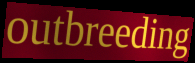
outbreeding